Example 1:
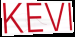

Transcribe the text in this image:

KEVI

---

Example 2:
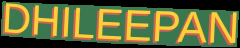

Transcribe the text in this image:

DHILEEPAN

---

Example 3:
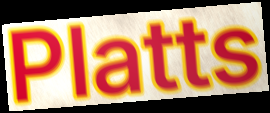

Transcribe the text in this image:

Platts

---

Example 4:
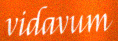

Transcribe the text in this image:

vidavum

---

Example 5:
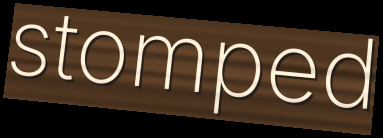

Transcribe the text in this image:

stomped